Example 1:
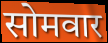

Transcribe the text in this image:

सोमवार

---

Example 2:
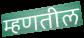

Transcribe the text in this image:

म्हणतील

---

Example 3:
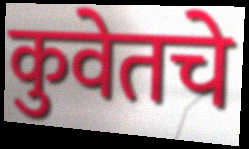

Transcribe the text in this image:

कुवेतचे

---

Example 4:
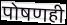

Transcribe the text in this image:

पोषणही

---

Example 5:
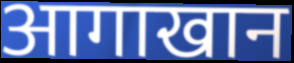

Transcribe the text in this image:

आगाखान